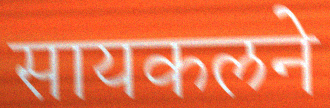
सायकलने